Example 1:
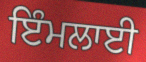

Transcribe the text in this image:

ਇੰਮਲਾਈ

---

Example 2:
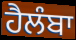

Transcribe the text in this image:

ਹੈਲੰਬਾ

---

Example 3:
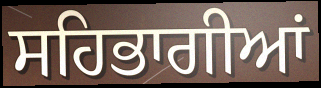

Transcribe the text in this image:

ਸਹਿਭਾਗੀਆਂ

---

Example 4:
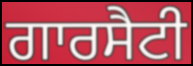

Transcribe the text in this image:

ਗਾਰਸੈਟੀ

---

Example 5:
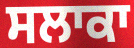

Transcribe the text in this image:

ਸਲਾਕਾ